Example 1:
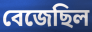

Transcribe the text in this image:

বেজেছিল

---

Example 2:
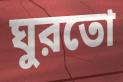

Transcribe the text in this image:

ঘুরতো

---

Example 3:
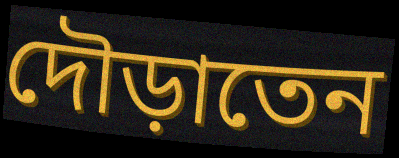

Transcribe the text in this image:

দৌড়াতেন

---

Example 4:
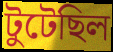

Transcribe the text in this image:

টুটেছিল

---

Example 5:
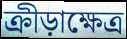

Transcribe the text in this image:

ক্রীড়াক্ষেত্র